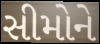
સીમોને